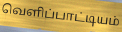
வெளிப்பாட்டியம்